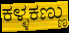
ಕಳ್ಳಕಣ್ಣು